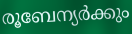
രൂബേന്യർക്കും